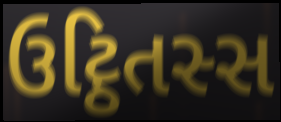
ઉટ્ઠિતસ્સ